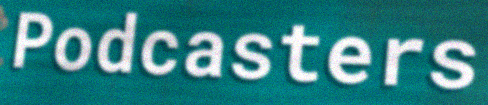
Podcasters